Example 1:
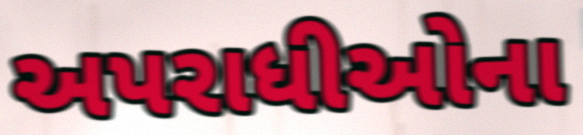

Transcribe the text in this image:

અપરાધીઓના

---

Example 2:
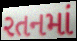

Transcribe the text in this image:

રતનમાં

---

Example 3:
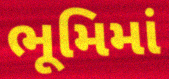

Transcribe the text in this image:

ભૂમિમાં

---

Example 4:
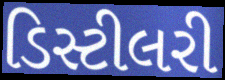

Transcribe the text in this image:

ડિસ્ટીલરી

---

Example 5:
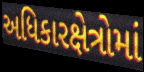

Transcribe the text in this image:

અધિકારક્ષેત્રોમાં